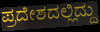
ಪ್ರದೇಶದಲ್ಲಿದ್ದು